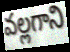
వల్లగాని